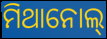
ମିଥାନୋଲ୍